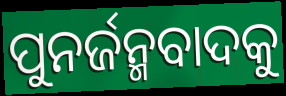
ପୁନର୍ଜନ୍ମବାଦକୁ